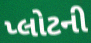
પ્લોટની